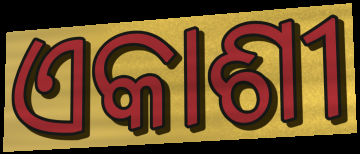
ଏକାଶୀ